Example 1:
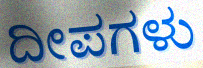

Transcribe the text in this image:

ದೀಪಗಳು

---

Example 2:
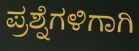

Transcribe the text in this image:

ಪ್ರಶ್ನೆಗಳಿಗಾಗಿ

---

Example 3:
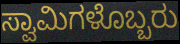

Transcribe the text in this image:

ಸ್ವಾಮಿಗಳೊಬ್ಬರು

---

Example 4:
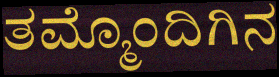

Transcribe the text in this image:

ತಮ್ಮೊಂದಿಗಿನ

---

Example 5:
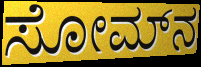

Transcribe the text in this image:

ಸೋಮ್‍ನ